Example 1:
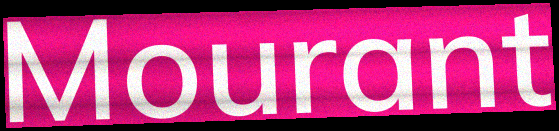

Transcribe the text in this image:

Mourant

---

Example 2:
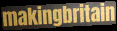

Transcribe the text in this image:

makingbritain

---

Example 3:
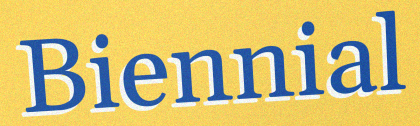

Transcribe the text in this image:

Biennial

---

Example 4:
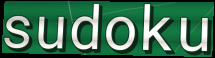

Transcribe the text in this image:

sudoku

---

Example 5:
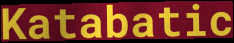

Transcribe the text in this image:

Katabatic